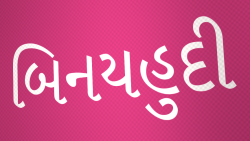
બિનયહુદી